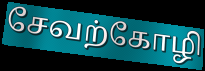
சேவற்கோழி